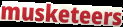
musketeers